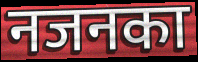
नजनका